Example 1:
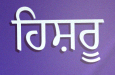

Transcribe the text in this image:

ਹਿਸ਼ਰੂ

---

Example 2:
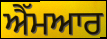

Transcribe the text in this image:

ਐੱਮਆਰ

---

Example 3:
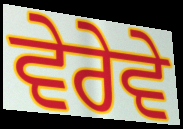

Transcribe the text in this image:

ਵੇਰੇਵੇ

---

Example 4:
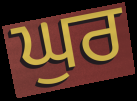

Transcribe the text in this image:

ਘੁਰ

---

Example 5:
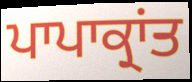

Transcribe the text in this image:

ਪਾਪਾਕ੍ਰਾਂਤ